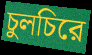
চুলচিরে